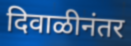
दिवाळीनंतर